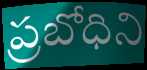
ప్రబోధిని